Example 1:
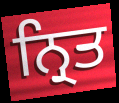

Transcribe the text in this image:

ਨ੍ਰਿਤ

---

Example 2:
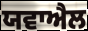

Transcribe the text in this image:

ਯਵਾਐਲ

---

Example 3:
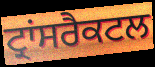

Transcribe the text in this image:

ਟ੍ਰਾਂਸਰੈਕਟਲ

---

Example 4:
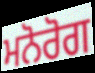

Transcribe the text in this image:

ਮਨੋਰੋਗ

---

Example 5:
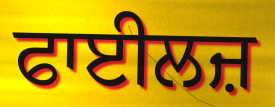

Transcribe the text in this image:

ਫਾਈਲਜ਼